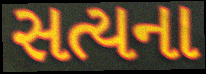
સત્યના